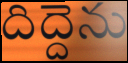
దిద్దెను